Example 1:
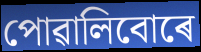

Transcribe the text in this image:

পোৱালিবোৰে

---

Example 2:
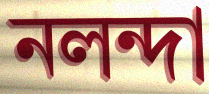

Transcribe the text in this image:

নলন্দা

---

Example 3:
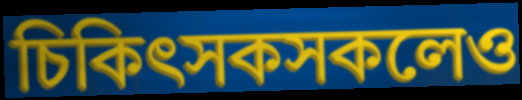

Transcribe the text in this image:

চিকিৎসকসকলেও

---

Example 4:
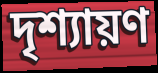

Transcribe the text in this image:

দৃশ্যায়ণ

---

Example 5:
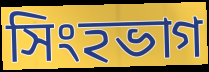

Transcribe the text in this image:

সিংহভাগ